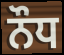
ਨੌਧ